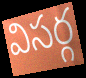
విసర్గ